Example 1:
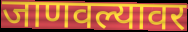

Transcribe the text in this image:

जाणवल्यावर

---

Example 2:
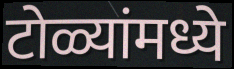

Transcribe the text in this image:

टोळ्यांमध्ये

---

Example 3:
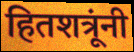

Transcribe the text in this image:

हितशत्रूंनी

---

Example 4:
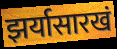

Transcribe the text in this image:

झर्यासारखं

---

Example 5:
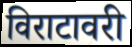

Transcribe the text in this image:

विराटावरी